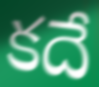
కదే